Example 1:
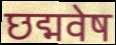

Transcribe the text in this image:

छद्मवेष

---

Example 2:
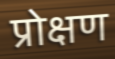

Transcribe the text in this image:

प्रोक्षण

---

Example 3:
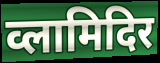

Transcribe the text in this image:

व्लामिदिर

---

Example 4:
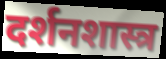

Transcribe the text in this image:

दर्शनशास्त्र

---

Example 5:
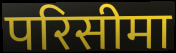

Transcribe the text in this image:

परिसीमा